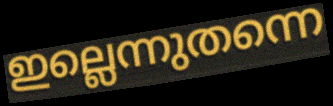
ഇല്ലെന്നുതന്നെ